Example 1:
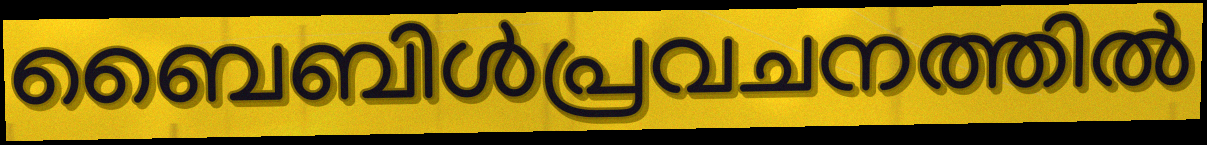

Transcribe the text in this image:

ബൈബിൾപ്രവചനത്തിൽ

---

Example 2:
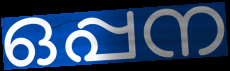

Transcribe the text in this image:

ഒപ്പന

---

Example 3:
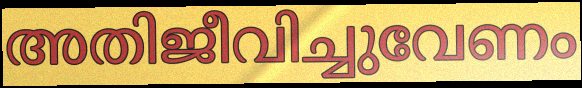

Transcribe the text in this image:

അതിജീവിച്ചുവേണം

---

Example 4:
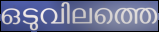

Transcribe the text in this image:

ഒടുവിലത്തെ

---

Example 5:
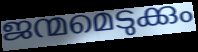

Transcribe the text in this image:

ജന്മമെടുക്കും